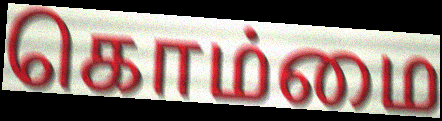
கொம்மை